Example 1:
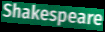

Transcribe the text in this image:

Shakespeare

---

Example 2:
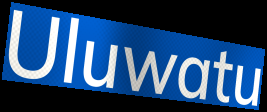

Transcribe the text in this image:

Uluwatu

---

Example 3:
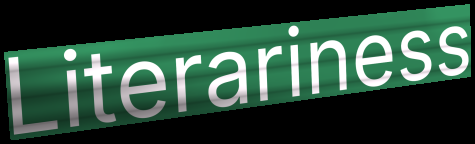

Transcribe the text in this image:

Literariness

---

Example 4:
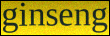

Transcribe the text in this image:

ginseng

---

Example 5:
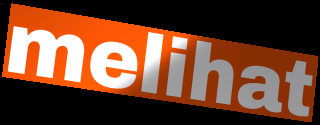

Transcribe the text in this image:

melihat